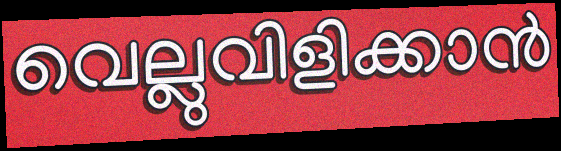
വെല്ലുവിളിക്കാൻ